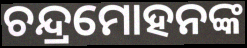
ଚନ୍ଦ୍ରମୋହନଙ୍କ